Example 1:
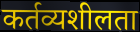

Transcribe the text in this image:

कर्तव्यशीलता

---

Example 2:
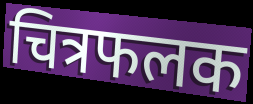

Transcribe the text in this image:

चित्रफलक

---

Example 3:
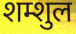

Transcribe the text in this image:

शम्शुल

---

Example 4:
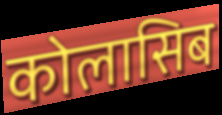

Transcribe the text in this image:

कोलासिब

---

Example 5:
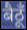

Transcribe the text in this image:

बैठूँ